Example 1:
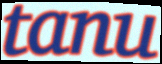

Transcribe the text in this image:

tanu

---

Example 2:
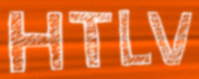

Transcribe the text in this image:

HTLV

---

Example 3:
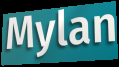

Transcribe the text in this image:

Mylan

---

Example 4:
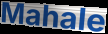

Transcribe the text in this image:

Mahale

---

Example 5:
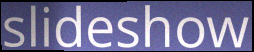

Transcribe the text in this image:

slideshow